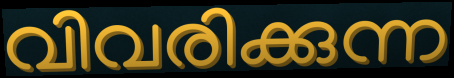
വിവരിക്കുന്ന